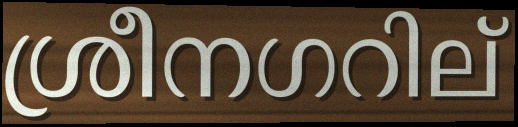
ശ്രീനഗറില്